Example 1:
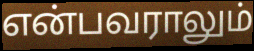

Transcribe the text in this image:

என்பவராலும்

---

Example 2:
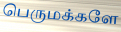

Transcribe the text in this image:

பெருமக்களே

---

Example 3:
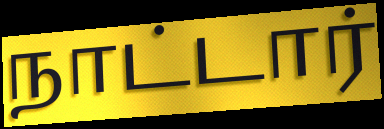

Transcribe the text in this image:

நாட்டார்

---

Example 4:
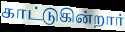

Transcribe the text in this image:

காட்டுகின்றார்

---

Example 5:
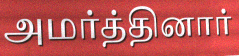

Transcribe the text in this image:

அமர்த்தினார்